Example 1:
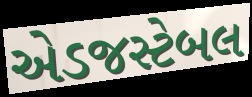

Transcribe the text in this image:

એડજસ્ટેબલ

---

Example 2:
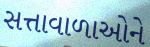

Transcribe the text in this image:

સત્તાવાળાઓને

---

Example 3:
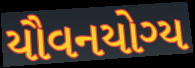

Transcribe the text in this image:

યૌવનયોગ્ય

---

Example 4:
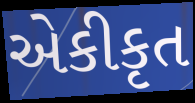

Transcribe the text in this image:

એકીકૃત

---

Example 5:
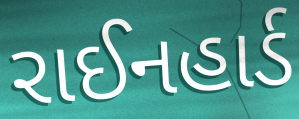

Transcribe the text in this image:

રાઈનહાર્ડ